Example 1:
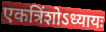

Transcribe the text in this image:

एकत्रिंशोऽध्यायः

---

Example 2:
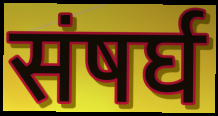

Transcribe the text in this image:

संषर्घ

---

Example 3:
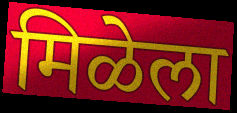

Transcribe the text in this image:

मिळेला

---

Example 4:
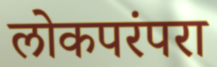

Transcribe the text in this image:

लोकपरंपरा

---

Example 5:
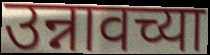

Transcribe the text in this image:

उन्नावच्या